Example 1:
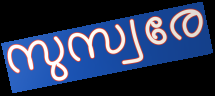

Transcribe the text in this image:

സുസ്വരേ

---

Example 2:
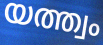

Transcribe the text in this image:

യത്ത്വം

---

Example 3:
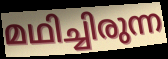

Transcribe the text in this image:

മഥിച്ചിരുന്ന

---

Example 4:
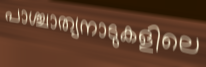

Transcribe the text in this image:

പാശ്ചാത്യനാടുകളിലെ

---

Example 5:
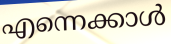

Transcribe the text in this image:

എന്നെക്കാൾ